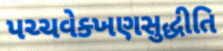
પચ્ચવેક્ખણસુદ્ધીતિ